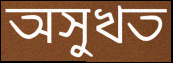
অসুখত